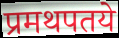
प्रमथपतये